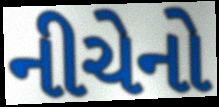
નીચેનો